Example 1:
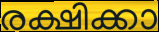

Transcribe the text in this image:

രക്ഷിക്കാ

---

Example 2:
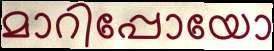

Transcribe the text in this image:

മാറിപ്പോയോ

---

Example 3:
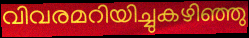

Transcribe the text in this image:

വിവരമറിയിച്ചുകഴിഞ്ഞു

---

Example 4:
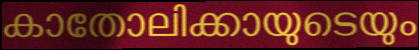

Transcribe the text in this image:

കാതോലിക്കായുടെയും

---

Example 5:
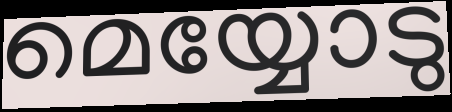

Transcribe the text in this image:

മെയ്യോടു